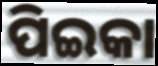
ପିଇକା